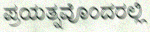
ಪ್ರಯತ್ನವೊಂದರಲ್ಲಿ